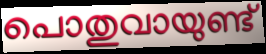
പൊതുവായുണ്ട്